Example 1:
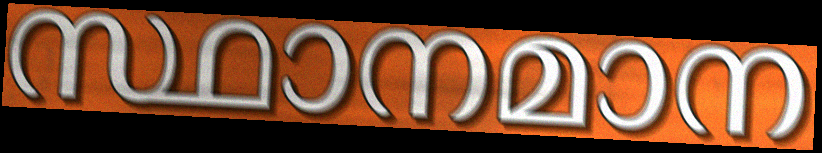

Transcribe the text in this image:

സ്ഥാനമാന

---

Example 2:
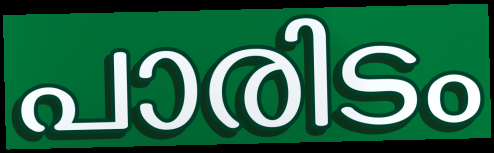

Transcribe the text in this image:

പാരിടം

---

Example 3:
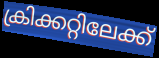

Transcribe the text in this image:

ക്രിക്കറ്റിലേക്ക്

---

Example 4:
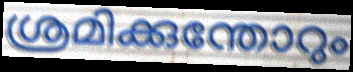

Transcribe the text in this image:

ശ്രമിക്കുന്തോറും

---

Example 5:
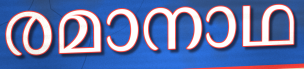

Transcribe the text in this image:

രമാനാഥ